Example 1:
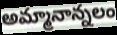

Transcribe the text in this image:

అమ్మానాన్నలం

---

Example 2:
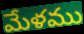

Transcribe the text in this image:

మేళము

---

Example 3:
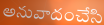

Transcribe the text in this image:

అనువాదంచేసి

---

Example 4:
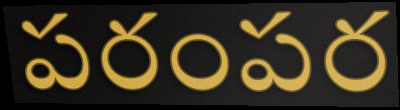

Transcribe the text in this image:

పరంపర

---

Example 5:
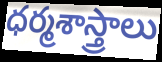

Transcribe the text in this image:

ధర్మశాస్త్రాలు